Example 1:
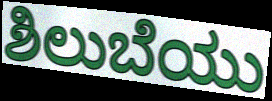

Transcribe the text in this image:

ಶಿಲುಬೆಯು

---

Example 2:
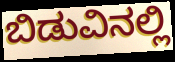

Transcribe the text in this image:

ಬಿಡುವಿನಲ್ಲಿ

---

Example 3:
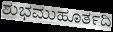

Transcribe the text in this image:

ಶುಭಮುಹೂರ್ತದಿ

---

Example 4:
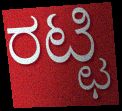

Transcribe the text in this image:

ರಟ್ಟಿ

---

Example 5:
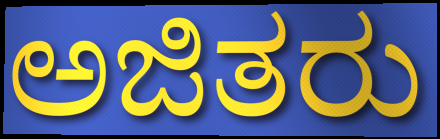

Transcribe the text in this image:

ಅಜಿತರು